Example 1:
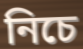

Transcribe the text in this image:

নিচে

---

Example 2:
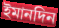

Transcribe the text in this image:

ইমানদিন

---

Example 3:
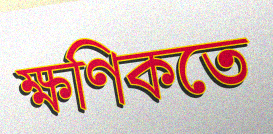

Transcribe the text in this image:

ক্ষণিকতে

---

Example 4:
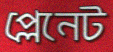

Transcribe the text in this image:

প্লেনেট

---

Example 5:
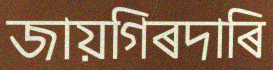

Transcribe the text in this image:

জায়গিৰদাৰি